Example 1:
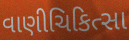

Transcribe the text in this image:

વાણીચિકિત્સા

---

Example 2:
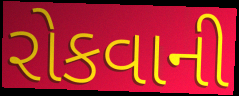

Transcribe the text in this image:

રોકવાની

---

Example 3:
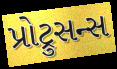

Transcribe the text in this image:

પ્રોટ્રુસન્સ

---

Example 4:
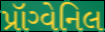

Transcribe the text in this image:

પ્રૉગ્વેનિલ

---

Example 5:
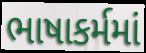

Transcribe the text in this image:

ભાષાકર્મમાં